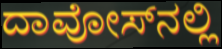
ದಾವೋಸ್‌ನಲ್ಲಿ